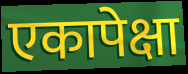
एकापेक्षा